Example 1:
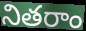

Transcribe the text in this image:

నితరాం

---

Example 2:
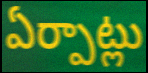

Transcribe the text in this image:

ఏర్పాట్లు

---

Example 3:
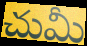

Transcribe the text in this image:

చుమీ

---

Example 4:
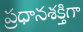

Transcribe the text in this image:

ప్రధానశక్తిగా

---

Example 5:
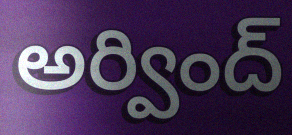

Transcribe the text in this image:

అర్వింద్